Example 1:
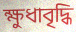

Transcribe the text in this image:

ক্ষুধাবৃদ্ধি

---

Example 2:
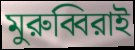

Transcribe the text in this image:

মুরুব্বিরাই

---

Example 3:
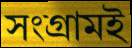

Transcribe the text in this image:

সংগ্রামই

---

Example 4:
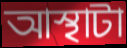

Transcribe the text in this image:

আস্থাটা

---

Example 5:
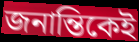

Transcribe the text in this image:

জনান্তিকেই